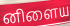
னிளைய